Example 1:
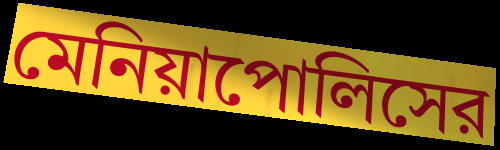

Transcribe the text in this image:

মেনিয়াপোলিসের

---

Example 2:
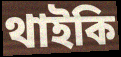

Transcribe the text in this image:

থাইকি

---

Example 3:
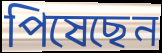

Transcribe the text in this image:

পিষেছেন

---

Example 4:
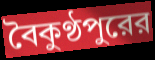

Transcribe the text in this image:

বৈকুণ্ঠপুরের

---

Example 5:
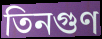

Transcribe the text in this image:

তিনগুণ